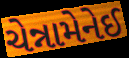
ચેન્નામેનેઈ